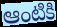
ఆంటికి